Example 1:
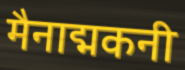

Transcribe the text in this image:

मैनाद्मकनी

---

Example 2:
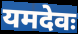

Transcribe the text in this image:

यमदेवः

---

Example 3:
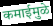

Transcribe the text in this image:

कमाईमुळे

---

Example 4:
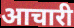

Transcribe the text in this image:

आचारी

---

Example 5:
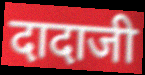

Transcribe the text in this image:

दादाजी